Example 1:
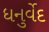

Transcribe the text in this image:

ધનુર્વેદ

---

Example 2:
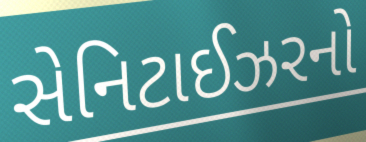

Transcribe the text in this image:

સેનિટાઈઝરનો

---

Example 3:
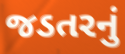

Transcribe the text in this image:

જડતરનું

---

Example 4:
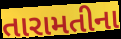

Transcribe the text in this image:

તારામતીના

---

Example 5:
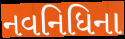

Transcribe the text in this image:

નવનિધિના